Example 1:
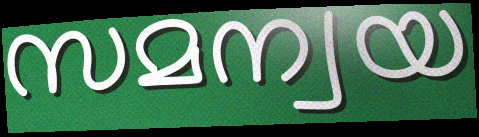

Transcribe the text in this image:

സമന്വയ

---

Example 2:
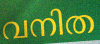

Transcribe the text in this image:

വനിത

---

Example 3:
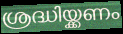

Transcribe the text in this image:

ശ്രദ്ധിയ്ക്കണം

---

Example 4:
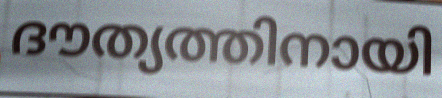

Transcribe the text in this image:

ദൗത്യത്തിനായി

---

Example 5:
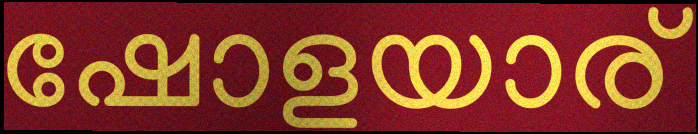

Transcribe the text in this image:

ഷോളയാര്